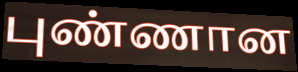
புண்ணான